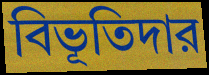
বিভূতিদার